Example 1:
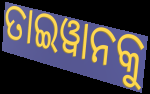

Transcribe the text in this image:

ତାଇୱାନକୁ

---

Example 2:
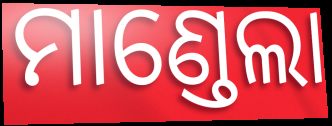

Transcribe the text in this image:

ମାଣ୍ଡେଲା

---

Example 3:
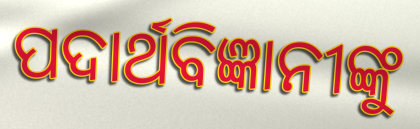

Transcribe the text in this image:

ପଦାର୍ଥବିଜ୍ଞାନୀଙ୍କୁ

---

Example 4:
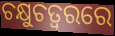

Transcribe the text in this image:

ଚକ୍ଷୁଚତ୍ୱରରେ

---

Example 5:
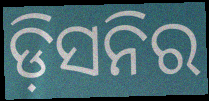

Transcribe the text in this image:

ଡ଼ିସନିର